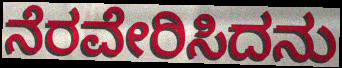
ನೆರವೇರಿಸಿದನು